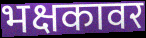
भक्षकावर